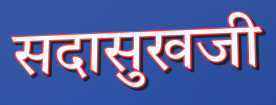
सदासुखजी